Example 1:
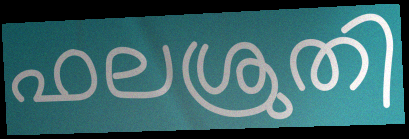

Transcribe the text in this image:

ഫലശ്രുതി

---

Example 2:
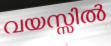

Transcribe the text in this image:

വയസ്സിൽ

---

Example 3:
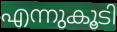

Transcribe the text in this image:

എന്നുകൂടി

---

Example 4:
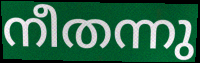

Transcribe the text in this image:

നീതന്നു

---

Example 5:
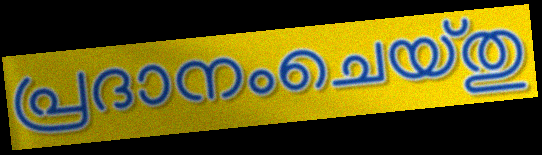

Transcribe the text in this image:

പ്രദാനംചെയ്തു